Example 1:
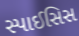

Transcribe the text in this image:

સ્પાઈસિસ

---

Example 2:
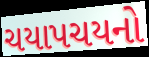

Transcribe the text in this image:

ચયાપચયનો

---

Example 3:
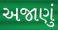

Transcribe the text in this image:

અજાણું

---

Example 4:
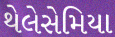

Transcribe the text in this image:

થેલેસેમિયા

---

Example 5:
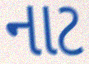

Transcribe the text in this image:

નાટ